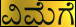
ವಿಮೆಗೆ